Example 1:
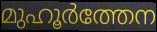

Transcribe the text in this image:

മുഹൂർത്തേന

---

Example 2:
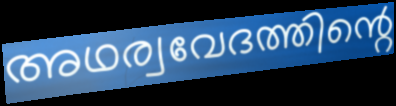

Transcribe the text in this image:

അഥര്വവേദത്തിന്റെ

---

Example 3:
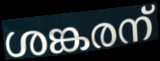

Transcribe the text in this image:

ശങ്കരന്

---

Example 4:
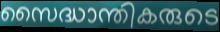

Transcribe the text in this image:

സൈദ്ധാന്തികരുടെ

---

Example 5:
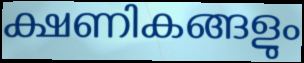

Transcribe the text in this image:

ക്ഷണികങ്ങളും